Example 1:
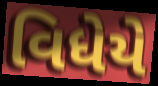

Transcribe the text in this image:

વિધેયે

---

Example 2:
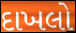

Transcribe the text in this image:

દાખલો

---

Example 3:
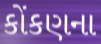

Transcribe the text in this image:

કોંકણના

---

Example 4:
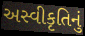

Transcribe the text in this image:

અસ્વીકૃતિનું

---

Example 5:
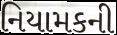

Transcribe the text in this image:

નિયામકની